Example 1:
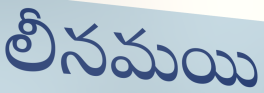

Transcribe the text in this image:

లీనమయి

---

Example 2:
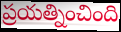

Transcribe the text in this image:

ప్రయత్నించింది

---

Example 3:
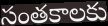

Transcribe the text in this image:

సంతకాలకు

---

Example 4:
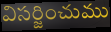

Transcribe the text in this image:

విసర్జించుము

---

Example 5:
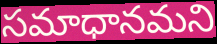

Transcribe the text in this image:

సమాధానమని